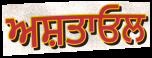
ਅਸ਼ਤਾਓਲ